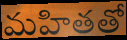
మహితతో